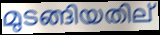
മുടങ്ങിയതില്